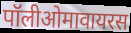
पॉलीओमावायरस